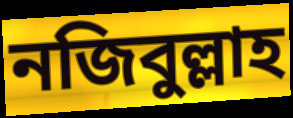
নজিবুল্লাহ